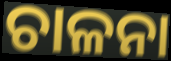
ଚାଳନା